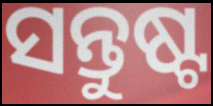
ସନ୍ତୁଷ୍ଟ